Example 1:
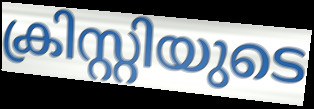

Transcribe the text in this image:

ക്രിസ്റ്റിയുടെ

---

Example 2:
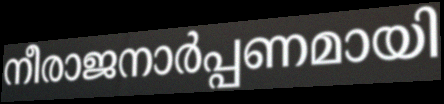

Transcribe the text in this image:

നീരാജനാർപ്പണമായി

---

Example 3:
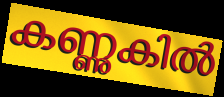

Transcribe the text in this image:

കണ്ണുകിൽ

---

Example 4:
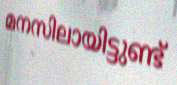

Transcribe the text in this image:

മനസിലായിട്ടുണ്ട്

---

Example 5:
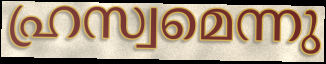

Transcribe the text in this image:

ഹ്രസ്വമെന്നു